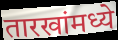
तारखांमध्ये